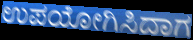
ಉಪಯೋಗಿಸಿದಾಗ